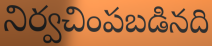
నిర్వచింపబడినది